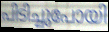
പിടിച്ചുപോയി